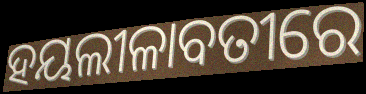
ହୟଲୀଳାବତୀରେ